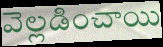
వెల్లడించాయి